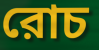
রোচ